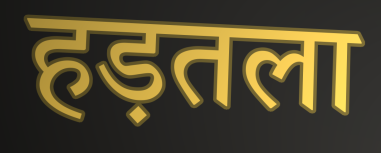
हड़तला